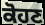
ਕੋਹਣ